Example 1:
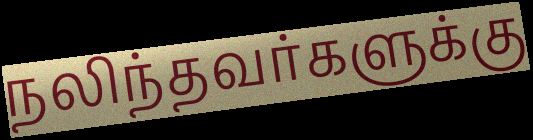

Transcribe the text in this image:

நலிந்தவர்களுக்கு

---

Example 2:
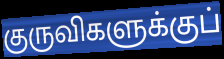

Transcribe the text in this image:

குருவிகளுக்குப்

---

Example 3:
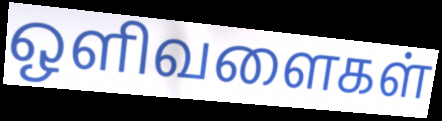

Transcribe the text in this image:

ஒளிவளைகள்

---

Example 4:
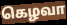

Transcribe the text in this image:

கெழவா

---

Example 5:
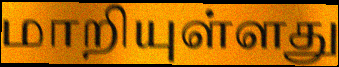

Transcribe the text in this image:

மாறியுள்ளது